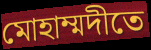
মোহাম্মদীতে